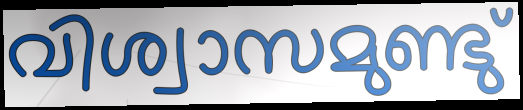
വിശ്വാസമുണ്ടു്